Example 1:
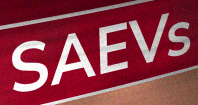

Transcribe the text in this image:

SAEVs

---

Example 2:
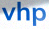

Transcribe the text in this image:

vhp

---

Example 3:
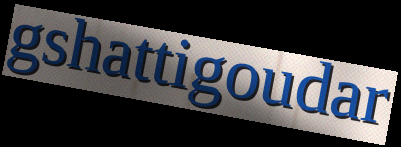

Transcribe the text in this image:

gshattigoudar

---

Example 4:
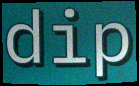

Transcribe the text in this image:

dip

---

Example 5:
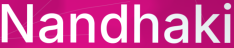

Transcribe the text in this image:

Nandhaki